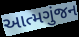
આત્મગુંજન